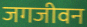
जगजीवन